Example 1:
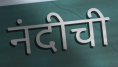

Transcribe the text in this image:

नंदीची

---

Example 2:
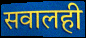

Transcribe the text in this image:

सवालही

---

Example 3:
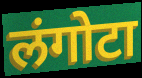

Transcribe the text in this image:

लंगोटा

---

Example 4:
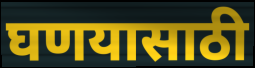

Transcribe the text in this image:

घणयासाठी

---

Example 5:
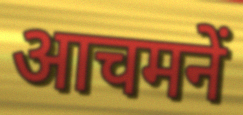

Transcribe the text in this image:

आचमनें